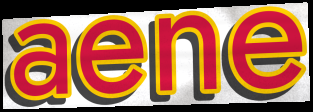
aene